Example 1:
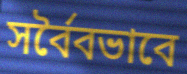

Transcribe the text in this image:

সর্বৈবভাবে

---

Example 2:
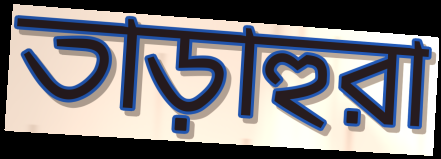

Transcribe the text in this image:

তাড়াহুরা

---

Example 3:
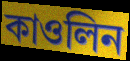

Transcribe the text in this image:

কাওলিন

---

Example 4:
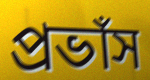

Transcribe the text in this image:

প্রভাঁস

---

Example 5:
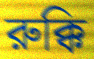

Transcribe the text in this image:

রুক্কি